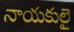
నాయకులై